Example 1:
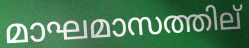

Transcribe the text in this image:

മാഘമാസത്തില്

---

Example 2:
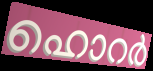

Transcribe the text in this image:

ഹൊറർ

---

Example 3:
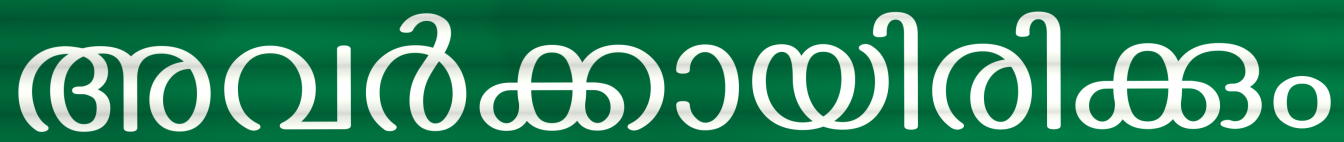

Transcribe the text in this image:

അവർക്കായിരിക്കും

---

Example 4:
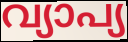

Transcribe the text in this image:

വ്യാപ്യ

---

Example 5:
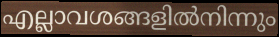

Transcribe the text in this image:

എല്ലാവശങ്ങളിൽനിന്നും